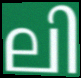
ലി